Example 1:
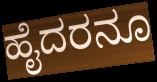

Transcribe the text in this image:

ಹೈದರನೂ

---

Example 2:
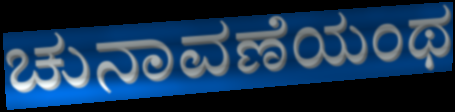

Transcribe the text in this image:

ಚುನಾವಣೆಯಂಥ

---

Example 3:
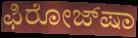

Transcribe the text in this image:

ಫಿರೋಜ್‌ಷಾ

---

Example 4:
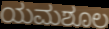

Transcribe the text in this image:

ಯಮಶೂಲ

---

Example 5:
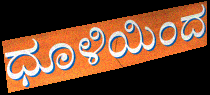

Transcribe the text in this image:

ಧೂಳಿಯಿಂದ